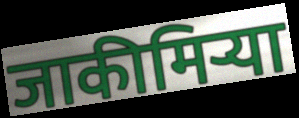
जाकीमिऱ्या